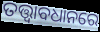
ତତ୍ତ୍ବାବଧାନରେ